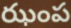
ఝంప